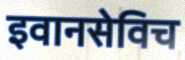
इवानसेविच